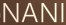
NANI